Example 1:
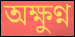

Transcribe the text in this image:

অক্ষুণ্ন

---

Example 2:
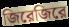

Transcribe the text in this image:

জিরেজিরে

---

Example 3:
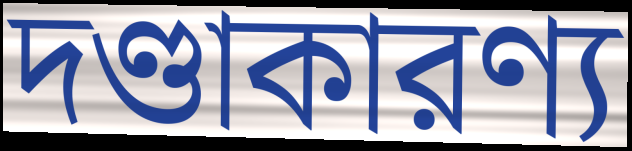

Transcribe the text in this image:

দণ্ডাকারণ্য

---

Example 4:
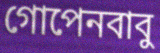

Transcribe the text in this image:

গোপেনবাবু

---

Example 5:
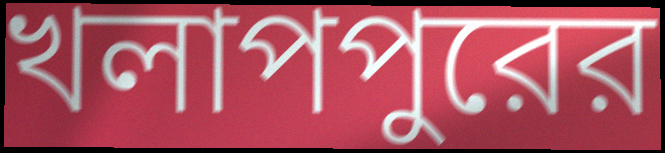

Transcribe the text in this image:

খলাপপুরের